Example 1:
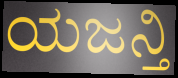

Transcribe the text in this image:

ಯಜನ್ತಿ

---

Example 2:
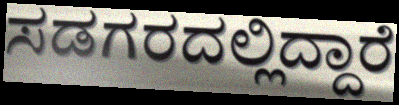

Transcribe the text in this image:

ಸಡಗರದಲ್ಲಿದ್ದಾರೆ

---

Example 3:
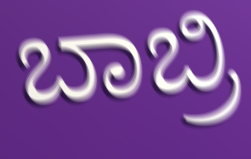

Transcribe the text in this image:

ಬಾಬ್ರಿ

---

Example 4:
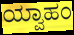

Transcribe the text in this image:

ಯ್ವಾಹಂ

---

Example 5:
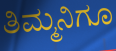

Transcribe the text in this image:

ತಿಮ್ಮನಿಗೂ